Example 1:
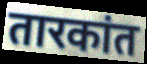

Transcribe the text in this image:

तारकांत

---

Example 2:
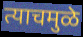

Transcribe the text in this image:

त्याचमुळे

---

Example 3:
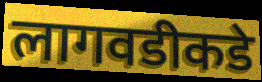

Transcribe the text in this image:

लागवडीकडे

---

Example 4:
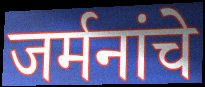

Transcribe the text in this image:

जर्मनांचे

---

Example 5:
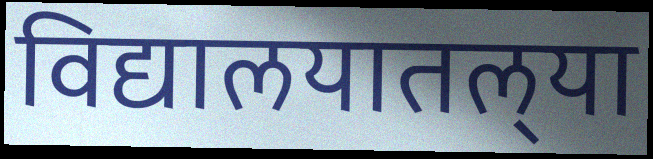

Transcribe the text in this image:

विद्यालयातल्या